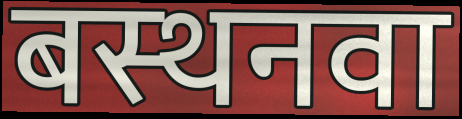
बस्थनवा